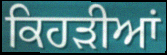
ਕਿਹੜੀਆਂ